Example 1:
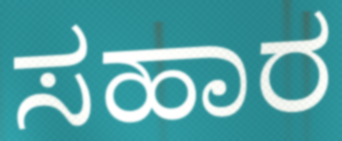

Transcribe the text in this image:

ಸಹಾರ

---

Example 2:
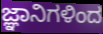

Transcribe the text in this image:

ಜ್ಞಾನಿಗಳಿಂದ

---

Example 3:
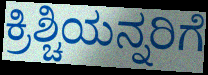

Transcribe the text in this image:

ಕ್ರಿಶ್ಚಿಯನ್ನರಿಗೆ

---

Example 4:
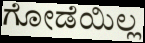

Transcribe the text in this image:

ಗೋಡೆಯಿಲ್ಲ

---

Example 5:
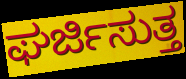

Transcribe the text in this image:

ಘರ್ಜಿಸುತ್ತ